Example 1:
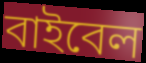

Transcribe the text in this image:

বাইবেল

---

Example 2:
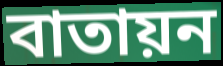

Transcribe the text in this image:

বাতায়ন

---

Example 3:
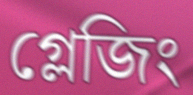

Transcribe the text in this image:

গ্লেজিং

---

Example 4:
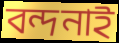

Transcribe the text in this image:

বন্দনাই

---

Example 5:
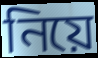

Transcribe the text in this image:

নিয়ে